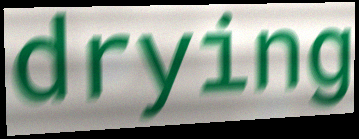
drying